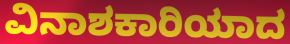
ವಿನಾಶಕಾರಿಯಾದ